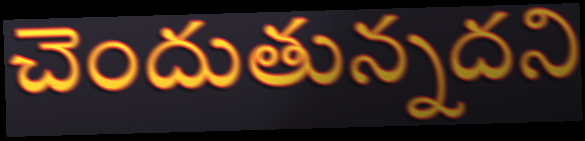
చెందుతున్నదని